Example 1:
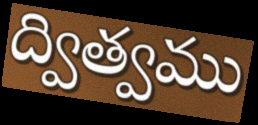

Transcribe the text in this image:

ద్విత్వము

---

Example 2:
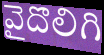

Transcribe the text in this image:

వైదొలిగి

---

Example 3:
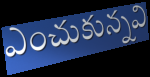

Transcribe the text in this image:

ఎంచుకున్నవి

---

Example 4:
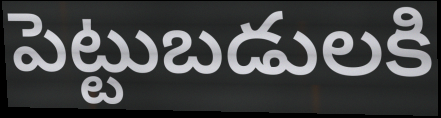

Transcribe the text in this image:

పెట్టుబడులకి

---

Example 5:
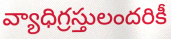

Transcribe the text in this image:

వ్యాధిగ్రస్తులందరికీ